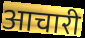
आचारी